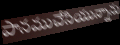
పానముచేసియున్నాను